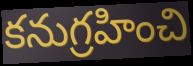
కనుగ్రహించి